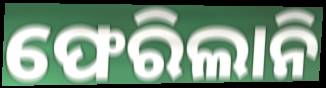
ଫେରିଲାନି